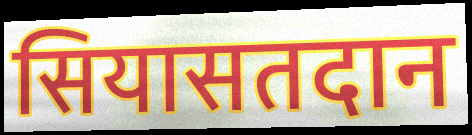
सियासतदान